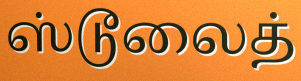
ஸ்டூலைத்